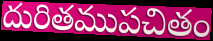
దురితముపచితం